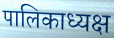
पालिकाध्यक्ष